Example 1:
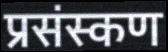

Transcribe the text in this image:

प्रसंस्कण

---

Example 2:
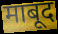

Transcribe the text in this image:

माबूद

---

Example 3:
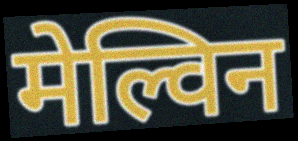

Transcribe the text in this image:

मेल्विन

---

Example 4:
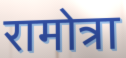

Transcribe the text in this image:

रामोत्रा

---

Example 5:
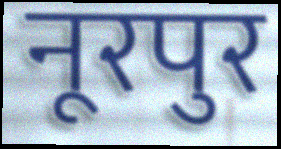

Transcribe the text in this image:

नूरपुर